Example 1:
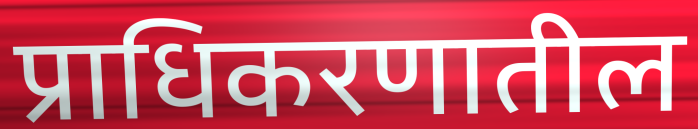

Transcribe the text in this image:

प्राधिकरणातील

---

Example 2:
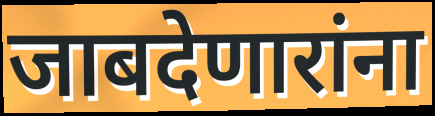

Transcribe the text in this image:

जाबदेणारांना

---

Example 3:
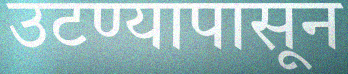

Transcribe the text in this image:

उटण्यापासून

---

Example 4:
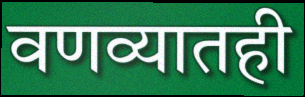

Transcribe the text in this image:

वणव्यातही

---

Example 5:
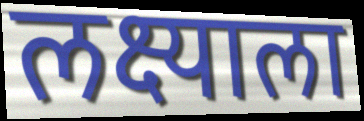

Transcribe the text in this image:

लक्ष्याला